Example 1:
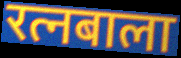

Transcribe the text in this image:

रत्नबाला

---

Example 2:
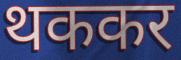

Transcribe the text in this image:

थककर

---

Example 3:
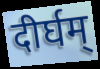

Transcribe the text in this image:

दीर्घम्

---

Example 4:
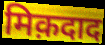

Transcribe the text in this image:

मिक़दाद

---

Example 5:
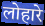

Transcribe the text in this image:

लोहारे